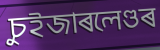
চুইজাৰলেণ্ডৰ